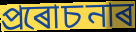
প্ৰৰোচনাৰ